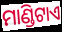
ମାଣ୍ଡିଟାଏ